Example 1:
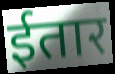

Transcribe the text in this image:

ईतार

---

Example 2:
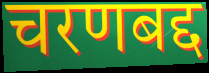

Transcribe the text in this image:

चरणबद्द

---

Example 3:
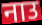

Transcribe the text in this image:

नाउ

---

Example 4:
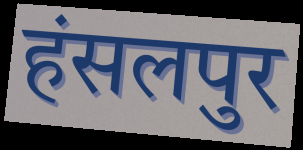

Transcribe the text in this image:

हंसलपुर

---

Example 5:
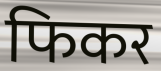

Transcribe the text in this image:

फिकर